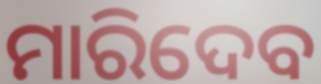
ମାରିଦେବ